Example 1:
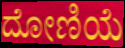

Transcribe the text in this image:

ದೋಣಿಯೆ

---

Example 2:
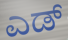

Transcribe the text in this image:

ಎಡ್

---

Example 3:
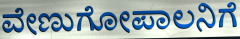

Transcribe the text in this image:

ವೇಣುಗೋಪಾಲನಿಗೆ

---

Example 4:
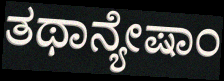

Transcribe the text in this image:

ತಥಾನ್ಯೇಷಾಂ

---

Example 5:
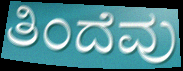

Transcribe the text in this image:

ತಿಂದೆವು